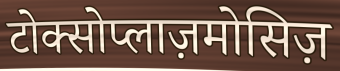
टोक्सोप्लाज़मोसिज़